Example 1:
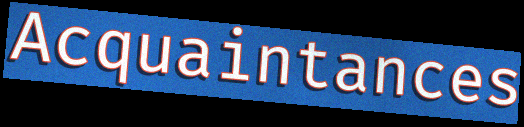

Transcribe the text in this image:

Acquaintances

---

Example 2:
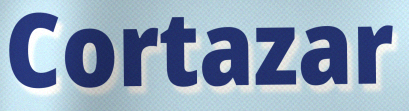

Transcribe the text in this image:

Cortazar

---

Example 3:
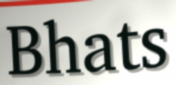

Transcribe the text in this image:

Bhats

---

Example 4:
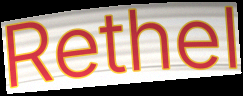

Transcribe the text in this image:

Rethel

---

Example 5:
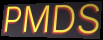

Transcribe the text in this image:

PMDS